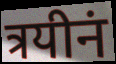
त्रयीनं